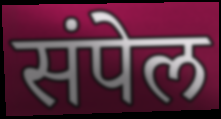
संपेल